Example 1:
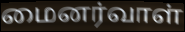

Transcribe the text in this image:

மைனர்வாள்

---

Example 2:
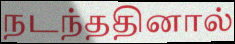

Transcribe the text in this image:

நடந்ததினால்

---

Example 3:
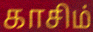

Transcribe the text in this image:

காசிம்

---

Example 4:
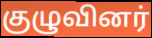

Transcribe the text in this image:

குழுவினர்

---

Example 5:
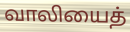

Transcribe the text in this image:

வாலியைத்